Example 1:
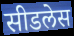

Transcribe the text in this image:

सीडलेस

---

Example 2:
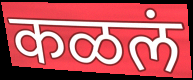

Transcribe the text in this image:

कळलं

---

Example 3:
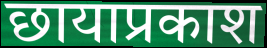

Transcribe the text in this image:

छायाप्रकाश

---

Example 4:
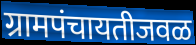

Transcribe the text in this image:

ग्रामपंचायतीजवळ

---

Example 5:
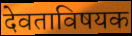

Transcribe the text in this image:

देवताविषयक